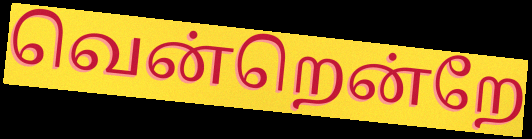
வென்றென்றே